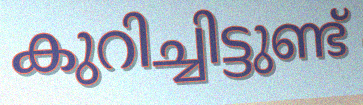
കുറിച്ചിട്ടുണ്ട്